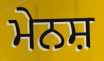
ਮੇਨਸ਼